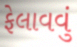
ફેલાવવું